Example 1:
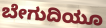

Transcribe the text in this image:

ಬೇಗುದಿಯೂ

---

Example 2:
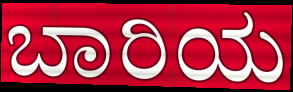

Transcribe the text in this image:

ಬಾರಿಯ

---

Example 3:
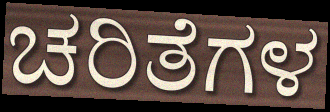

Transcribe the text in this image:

ಚರಿತೆಗಳ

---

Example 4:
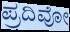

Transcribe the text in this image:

ಪ್ರದಿವೋ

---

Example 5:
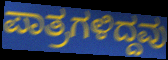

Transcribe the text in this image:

ಪಾತ್ರಗಳಿದ್ದವು